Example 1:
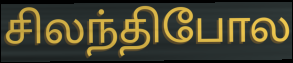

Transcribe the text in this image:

சிலந்திபோல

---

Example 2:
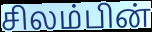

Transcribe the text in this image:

சிலம்பின்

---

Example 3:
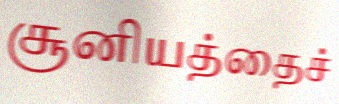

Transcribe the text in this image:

சூனியத்தைச்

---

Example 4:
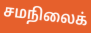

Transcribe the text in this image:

சமநிலைக்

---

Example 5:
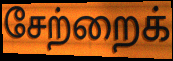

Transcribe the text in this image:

சேற்றைக்